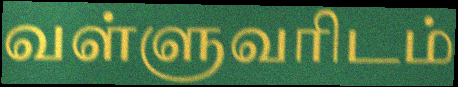
வள்ளுவரிடம்